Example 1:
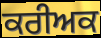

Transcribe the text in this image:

ਕਰੀਅਕ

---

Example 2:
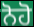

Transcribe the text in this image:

ਨੋਹੋ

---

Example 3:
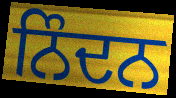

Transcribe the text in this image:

ਨਿੰਦਨ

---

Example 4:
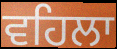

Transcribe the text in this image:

ਵਹਿਲਾ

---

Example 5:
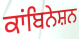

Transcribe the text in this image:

ਕਾਂਬਿਨੇਸ਼ਨ